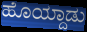
ಹೊಯ್ದಾಡು